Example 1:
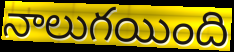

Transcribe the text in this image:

నాలుగయింది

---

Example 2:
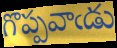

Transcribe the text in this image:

గొప్పవాఁడు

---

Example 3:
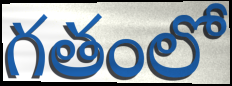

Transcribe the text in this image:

గతంలో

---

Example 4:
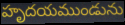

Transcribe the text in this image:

హృదయముండును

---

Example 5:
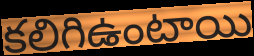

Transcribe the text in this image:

కలిగిఉంటాయి